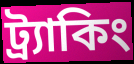
ট্র্যাকিং